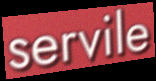
servile